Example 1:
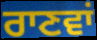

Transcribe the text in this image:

ਰਾਣਵਾਂ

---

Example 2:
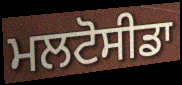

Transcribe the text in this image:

ਮਲਟੋਸੀਡਾ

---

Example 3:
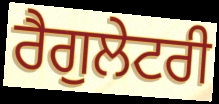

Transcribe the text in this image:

ਰੈਗੁਲੇਟਰੀ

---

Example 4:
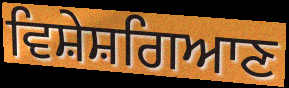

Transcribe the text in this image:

ਵਿਸ਼ੇਸ਼ਗਿਆਣ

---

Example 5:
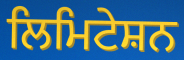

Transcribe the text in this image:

ਲਿਮਿਟੇਸ਼ਨ